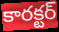
కారక్టర్